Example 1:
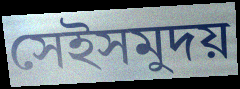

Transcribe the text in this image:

সেইসমুদয়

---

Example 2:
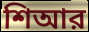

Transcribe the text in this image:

শিআর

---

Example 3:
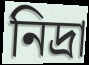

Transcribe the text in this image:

নিদ্রা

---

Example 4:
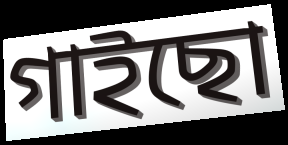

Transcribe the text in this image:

গাইছো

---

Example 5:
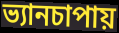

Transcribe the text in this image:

ভ্যানচাপায়